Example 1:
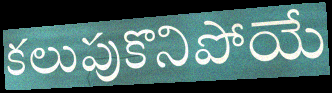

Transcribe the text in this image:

కలుపుకొనిపోయే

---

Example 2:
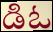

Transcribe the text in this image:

డిఓ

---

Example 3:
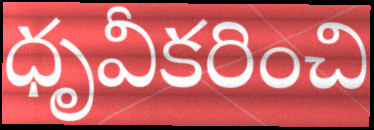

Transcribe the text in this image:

ధృవీకరించి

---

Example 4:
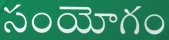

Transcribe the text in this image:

సంయోగం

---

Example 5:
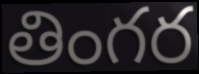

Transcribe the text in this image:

తింగర